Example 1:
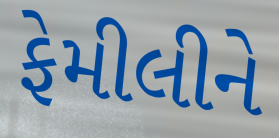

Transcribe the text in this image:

ફેમીલીને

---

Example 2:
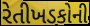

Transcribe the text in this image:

રેતીખડકોની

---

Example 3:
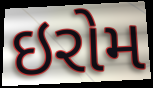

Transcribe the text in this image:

ઇરોમ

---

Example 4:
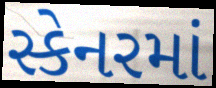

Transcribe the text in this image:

સ્કેનરમાં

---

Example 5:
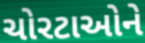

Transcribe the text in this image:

ચોરટાઓને